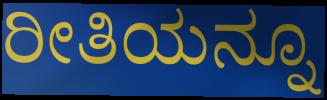
ರೀತಿಯನ್ನೂ